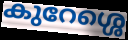
കുറേശ്ശെ